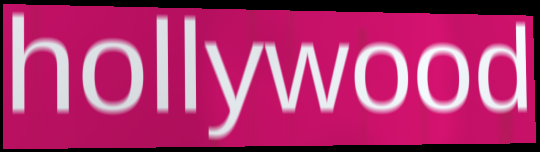
hollywood